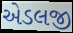
એડલજી